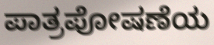
ಪಾತ್ರಪೋಷಣೆಯ